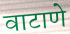
वाटाणे